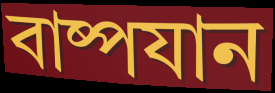
বাষ্পযান